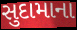
સુદામાના